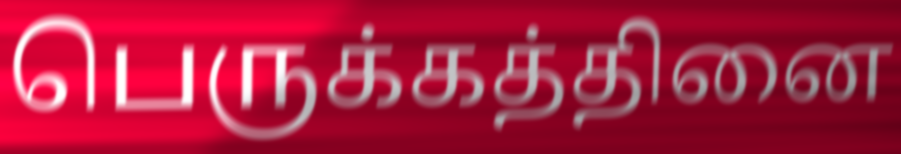
பெருக்கத்தினை